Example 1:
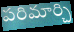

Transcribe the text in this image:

పరిమార్చి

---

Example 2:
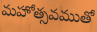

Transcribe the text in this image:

మహోత్సవముతో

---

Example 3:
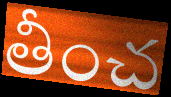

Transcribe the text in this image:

తీంచ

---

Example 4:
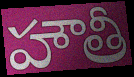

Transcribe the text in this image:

హౌతీ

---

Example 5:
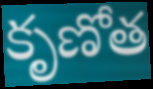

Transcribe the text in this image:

కృణోత